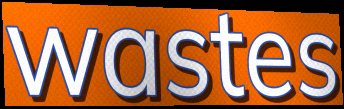
wastes